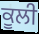
ਕੂਲੀ